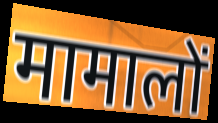
मामालों